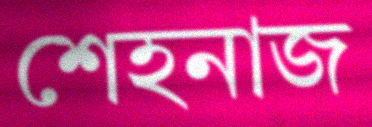
শেহনাজ